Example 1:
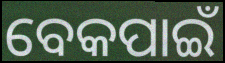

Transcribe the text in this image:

ବେକପାଇଁ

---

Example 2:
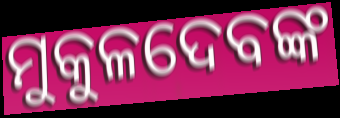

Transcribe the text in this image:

ମୁକୁଳଦେବଙ୍କ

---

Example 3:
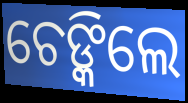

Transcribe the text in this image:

ଚେଙ୍କିଲେ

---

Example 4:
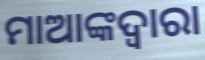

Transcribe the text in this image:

ମାଆଙ୍କଦ୍ଵାରା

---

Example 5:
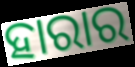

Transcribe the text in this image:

ହାରାର